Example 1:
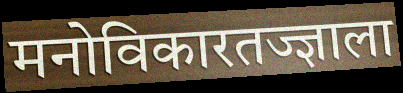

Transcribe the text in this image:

मनोविकारतज्ज्ञाला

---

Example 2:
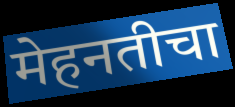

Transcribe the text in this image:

मेहनतीचा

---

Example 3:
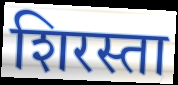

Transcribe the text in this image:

शिरस्ता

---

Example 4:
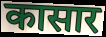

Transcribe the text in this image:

कासार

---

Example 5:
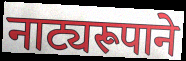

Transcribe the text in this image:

नाट्यरूपाने